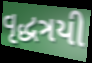
વૃદ્ધત્રયી